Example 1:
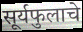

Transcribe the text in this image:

सूर्यफुलाचे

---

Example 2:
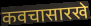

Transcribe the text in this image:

कवचासारखे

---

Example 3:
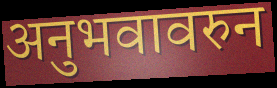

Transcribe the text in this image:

अनुभवावरुन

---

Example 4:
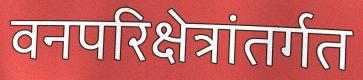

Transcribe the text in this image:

वनपरिक्षेत्रांतर्गत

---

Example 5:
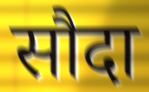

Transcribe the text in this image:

सौदा